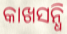
କାଖସନ୍ଧି